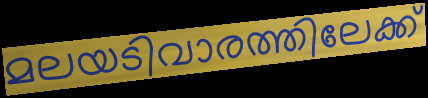
മലയടിവാരത്തിലേക്ക്